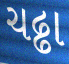
ચઢ્ઢા